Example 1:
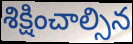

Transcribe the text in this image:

శిక్షించాల్సిన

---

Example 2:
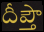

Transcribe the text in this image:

దీప్తౌ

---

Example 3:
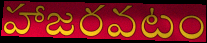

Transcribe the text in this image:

హాజరవటం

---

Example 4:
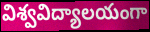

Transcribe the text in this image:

విశ్వవిద్యాలయంగా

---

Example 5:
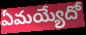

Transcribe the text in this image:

ఏమయ్యేదో